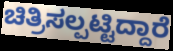
ಚಿತ್ರಿಸಲ್ಪಟ್ಟಿದ್ದಾರೆ